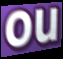
ou